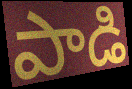
పాడి